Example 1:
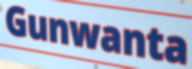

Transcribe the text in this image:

Gunwanta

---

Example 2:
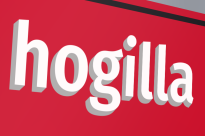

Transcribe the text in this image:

hogilla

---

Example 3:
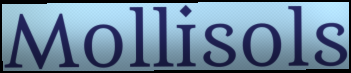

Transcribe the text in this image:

Mollisols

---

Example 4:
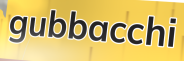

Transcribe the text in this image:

gubbacchi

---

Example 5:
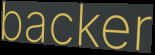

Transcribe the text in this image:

backer